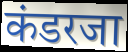
कंडरजा